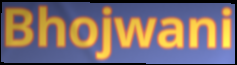
Bhojwani